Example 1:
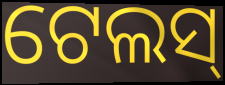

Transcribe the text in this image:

ଟେଲସ୍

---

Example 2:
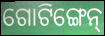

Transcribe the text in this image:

ଗୋଟିଙ୍ଗେନ୍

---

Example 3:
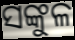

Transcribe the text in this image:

ସଙ୍କୁଳ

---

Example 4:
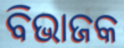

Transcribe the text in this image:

ବିଭାଜକ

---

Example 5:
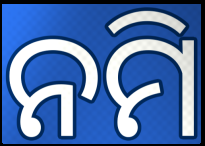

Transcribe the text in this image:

ନମି